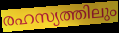
രഹസ്യത്തിലും